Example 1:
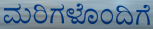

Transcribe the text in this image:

ಮರಿಗಳೊಂದಿಗೆ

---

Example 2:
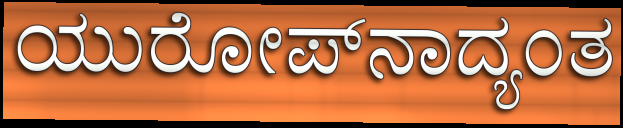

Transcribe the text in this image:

ಯುರೋಪ್‌ನಾದ್ಯಂತ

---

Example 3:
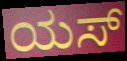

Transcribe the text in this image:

ಯಸ್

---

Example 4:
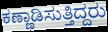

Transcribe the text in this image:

ಕಣ್ಣಾಡಿಸುತ್ತಿದ್ದರು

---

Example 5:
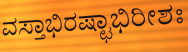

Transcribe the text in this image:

ವಸ್ತಾಭಿರಷ್ಟಾಭಿರೀಶಃ